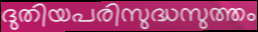
ദുതിയപരിസുദ്ധസുത്തം